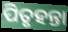
ପିତୃହନ୍ତା